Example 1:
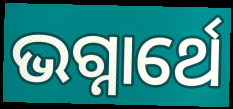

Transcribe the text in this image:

ଭଗ୍ନାର୍ଥେ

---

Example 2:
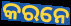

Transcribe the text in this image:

କରନେ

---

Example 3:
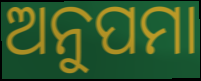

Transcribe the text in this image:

ଅନୁପମା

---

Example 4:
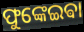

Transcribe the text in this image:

ଫୁଙ୍କେଇଵା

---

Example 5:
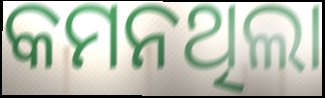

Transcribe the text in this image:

କମନଥିଲା